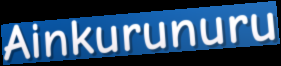
Ainkurunuru